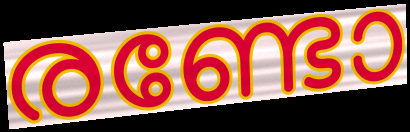
രണ്ടോ